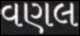
વણલ